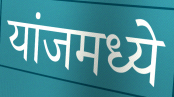
यांजमध्ये